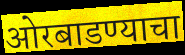
ओरबाडण्याचा